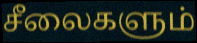
சீலைகளும்